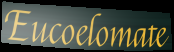
Eucoelomate